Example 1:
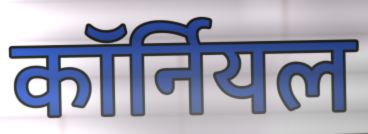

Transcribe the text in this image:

कॉर्नियल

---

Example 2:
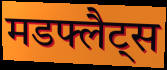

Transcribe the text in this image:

मडफ्लैट्स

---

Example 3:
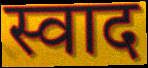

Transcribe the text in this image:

स्वाद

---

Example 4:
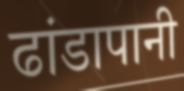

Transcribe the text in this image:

ढांडापानी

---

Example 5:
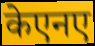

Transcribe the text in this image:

केएनए